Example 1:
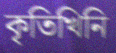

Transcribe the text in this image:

কৃতিখিনি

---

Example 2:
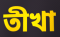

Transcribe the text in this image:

তীখা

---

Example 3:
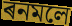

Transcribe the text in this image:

ৰনমলে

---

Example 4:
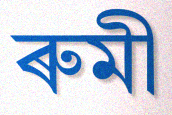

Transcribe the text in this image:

ৰুমী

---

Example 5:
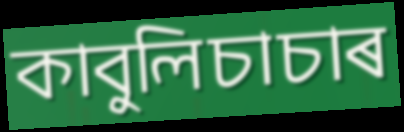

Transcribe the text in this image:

কাবুলিচাচাৰ